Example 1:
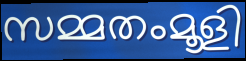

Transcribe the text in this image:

സമ്മതംമൂളി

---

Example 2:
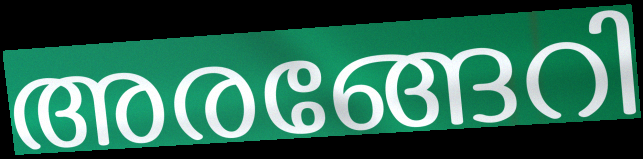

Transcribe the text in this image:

അരങ്ങേറി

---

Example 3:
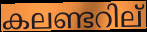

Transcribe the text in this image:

കലണ്ടറില്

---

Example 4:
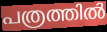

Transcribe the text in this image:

പത്രത്തിൽ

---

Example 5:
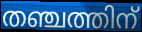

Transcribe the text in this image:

തഞ്ചത്തിന്